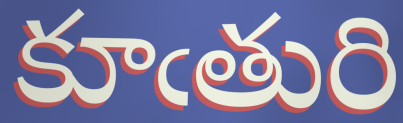
కూఁతురి